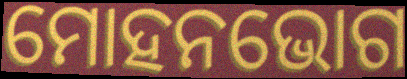
ମୋହନଭୋଗ